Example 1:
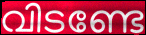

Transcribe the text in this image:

വിടണ്ടേ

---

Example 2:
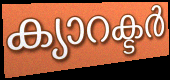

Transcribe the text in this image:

ക്യാറക്ടർ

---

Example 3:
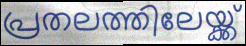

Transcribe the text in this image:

പ്രതലത്തിലേയ്ക്ക്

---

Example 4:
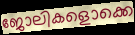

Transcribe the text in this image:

ജോലികളൊക്കെ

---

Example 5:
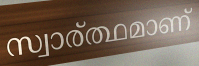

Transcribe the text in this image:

സ്വാര്ത്ഥമാണ്